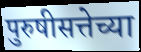
पुरुषीसत्तेच्या